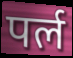
पर्ल